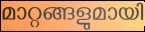
മാറ്റങ്ങളുമായി